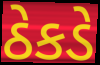
ઠેકડે